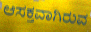
ಆಸಕ್ತವಾಗಿರುವ